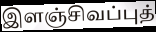
இளஞ்சிவப்புத்